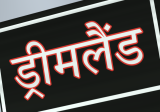
ड्रीमलैंड